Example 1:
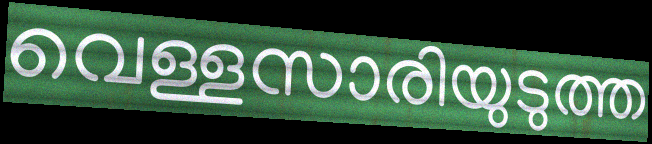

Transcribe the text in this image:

വെള്ളസാരിയുടുത്ത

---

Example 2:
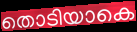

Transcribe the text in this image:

തൊടിയാകെ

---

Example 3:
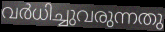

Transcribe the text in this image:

വർധിച്ചുവരുന്നതു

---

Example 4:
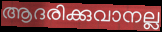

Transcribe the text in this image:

ആദരിക്കുവാനല്ല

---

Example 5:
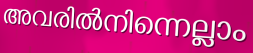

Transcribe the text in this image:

അവരിൽനിന്നെല്ലാം